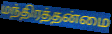
மந்திரத்தன்மை